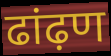
ढांढ़ण